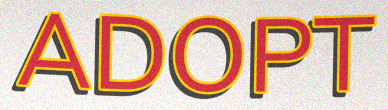
ADOPT